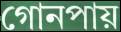
গোনপায়